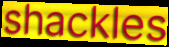
shackles